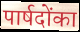
पार्षदोंका